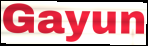
Gayun